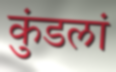
कुंडलां